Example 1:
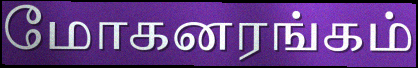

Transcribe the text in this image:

மோகனரங்கம்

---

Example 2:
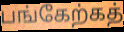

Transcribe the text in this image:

பங்கேற்கத்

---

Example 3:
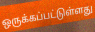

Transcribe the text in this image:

ஒருக்கப்பட்டுள்ளது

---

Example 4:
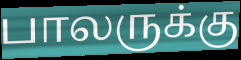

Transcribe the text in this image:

பாலருக்கு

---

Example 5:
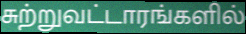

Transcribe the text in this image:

சுற்றுவட்டாரங்களில்